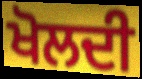
ਖੋਲਦੀ